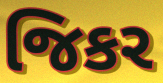
જિકર